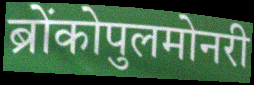
ब्रोंकोपुलमोनरी